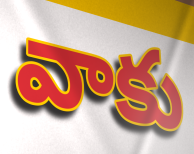
వాకు